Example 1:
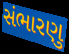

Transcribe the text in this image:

સંભારણુ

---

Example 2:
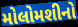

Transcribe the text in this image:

મોલોમશીનો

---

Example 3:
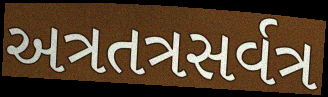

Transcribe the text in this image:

અત્રતત્રસર્વત્ર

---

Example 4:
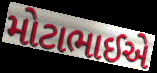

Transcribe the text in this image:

મોટાભાઈએ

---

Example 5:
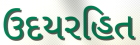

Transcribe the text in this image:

ઉદયરહિત